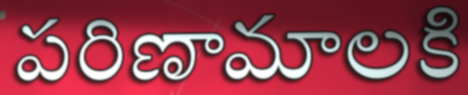
పరిణామాలకి